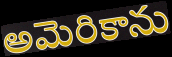
అమెరికాను